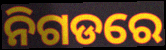
ନିଗଡରେ